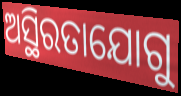
ଅସ୍ଥିରତାଯୋଗୁ